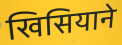
खिसियाने